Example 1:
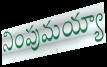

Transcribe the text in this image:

నింపుమయ్యా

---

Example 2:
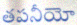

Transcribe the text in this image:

తపనీయో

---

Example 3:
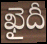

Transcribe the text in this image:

ఖైదీ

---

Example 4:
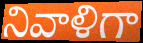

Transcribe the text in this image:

నివాళిగా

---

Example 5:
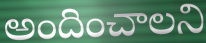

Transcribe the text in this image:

అందించాలని